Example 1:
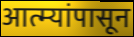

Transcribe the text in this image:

आत्म्यांपासून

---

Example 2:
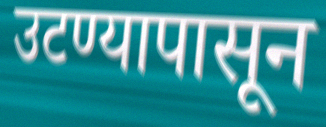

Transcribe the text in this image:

उटण्यापासून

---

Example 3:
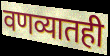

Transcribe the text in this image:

वणव्यातही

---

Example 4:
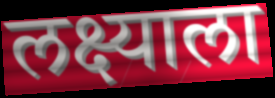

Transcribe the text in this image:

लक्ष्याला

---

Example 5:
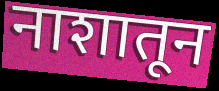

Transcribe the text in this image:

नाशातून